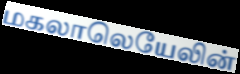
மகலாலெயேலின்